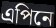
এপিনে